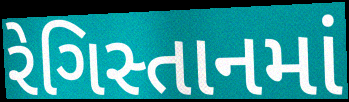
રેગિસ્તાનમાં